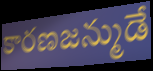
కారణజన్ముడే